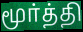
மூர்த்தி